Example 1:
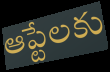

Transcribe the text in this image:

ఆప్టేలకు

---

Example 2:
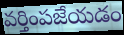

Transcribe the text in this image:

వర్తింపజేయడం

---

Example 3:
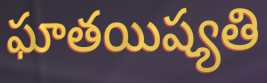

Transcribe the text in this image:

ఘాతయిష్యతి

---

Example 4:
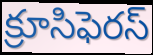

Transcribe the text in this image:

క్రూసిఫెరస్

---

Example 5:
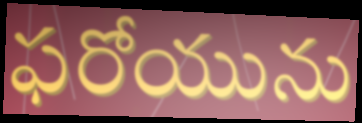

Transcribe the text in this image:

ఫరోయును